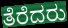
ತೆರೆದರು